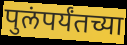
पुलंपर्यंतच्या